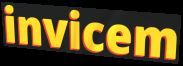
invicem